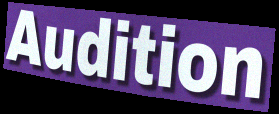
Audition